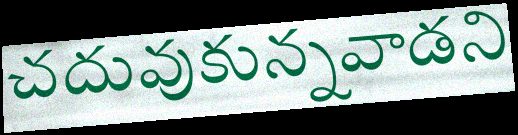
చదువుకున్నవాడని